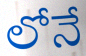
లోనే